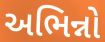
અભિન્નો